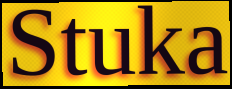
Stuka